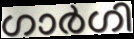
ഗാർഗി